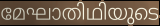
മേഘാതിഥിയുടെ